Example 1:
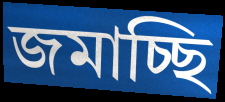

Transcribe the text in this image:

জমাচ্ছি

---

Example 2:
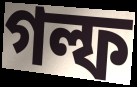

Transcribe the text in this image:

গল্ফ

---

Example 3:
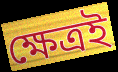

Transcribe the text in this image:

ক্ষেত্রই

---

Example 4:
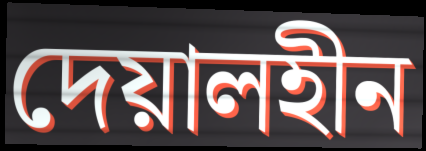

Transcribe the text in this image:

দেয়ালহীন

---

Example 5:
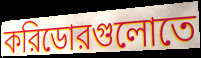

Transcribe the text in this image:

করিডোরগুলোতে